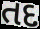
તદ